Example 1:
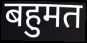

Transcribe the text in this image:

बहुमत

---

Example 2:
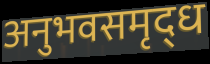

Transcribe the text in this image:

अनुभवसमृद्ध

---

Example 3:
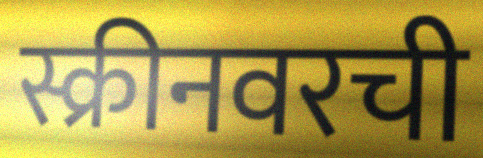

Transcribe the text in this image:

स्क्रीनवरची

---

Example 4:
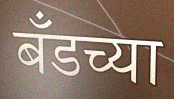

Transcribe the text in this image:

बँडच्या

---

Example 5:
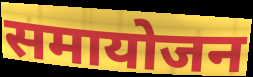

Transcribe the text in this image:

समायोजन